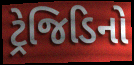
ટ્રેજિડિનો